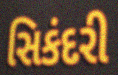
સિકંદરી